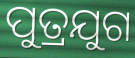
ପୁତ୍ରଯୁଗ